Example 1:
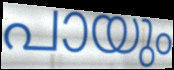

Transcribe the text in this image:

പായും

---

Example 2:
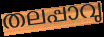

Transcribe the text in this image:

തലപ്പാവു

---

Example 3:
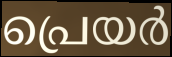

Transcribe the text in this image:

പ്രെയർ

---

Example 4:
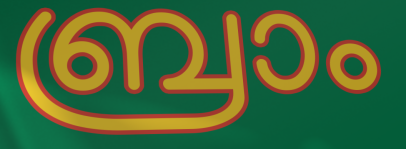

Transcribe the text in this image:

ബ്രാം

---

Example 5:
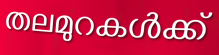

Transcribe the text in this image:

തലമുറകൾക്ക്